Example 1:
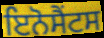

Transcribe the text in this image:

ਇਨੋਸੈਂਟਸ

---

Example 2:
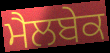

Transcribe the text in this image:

ਮੈਲਬੇਕ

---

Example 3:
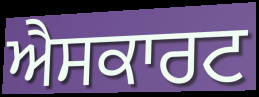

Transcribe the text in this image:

ਐਸਕਾਰਟ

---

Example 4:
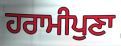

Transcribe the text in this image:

ਹਰਾਮੀਪੁਣਾ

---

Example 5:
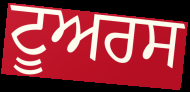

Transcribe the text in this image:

ਟੂਅਰਸ